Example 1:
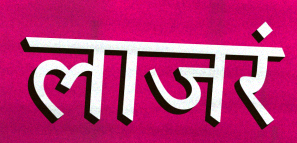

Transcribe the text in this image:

लाजरं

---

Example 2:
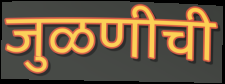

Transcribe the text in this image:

जुळणीची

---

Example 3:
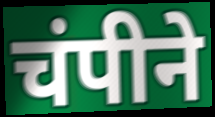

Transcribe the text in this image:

चंपीने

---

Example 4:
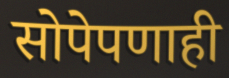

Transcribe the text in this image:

सोपेपणाही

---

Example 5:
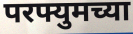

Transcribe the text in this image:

परफ्युमच्या